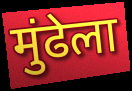
मुंढेला